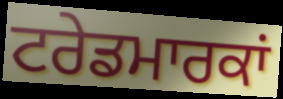
ਟਰੇਡਮਾਰਕਾਂ